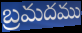
బ్రమదము